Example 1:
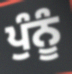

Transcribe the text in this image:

ਪੁੰਨੂੰ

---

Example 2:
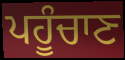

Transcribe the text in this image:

ਪਹੂੰਚਾਣ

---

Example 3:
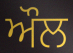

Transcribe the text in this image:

ਔਲ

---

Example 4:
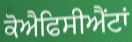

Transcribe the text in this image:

ਕੋਐਫਿਸੀਐਂਟਾਂ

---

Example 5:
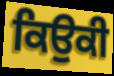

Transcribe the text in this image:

ਕਿਉਕੀ